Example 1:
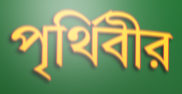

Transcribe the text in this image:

পৃর্থিবীর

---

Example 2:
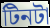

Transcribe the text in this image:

টিনটা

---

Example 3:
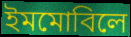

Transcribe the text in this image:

ইমমোবিলে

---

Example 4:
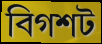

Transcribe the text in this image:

বিগশট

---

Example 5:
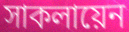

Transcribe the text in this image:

সাকলায়েন